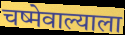
चष्मेवाल्याला